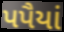
પપૈયાં